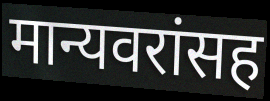
मान्यवरांसह